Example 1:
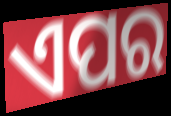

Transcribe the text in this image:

ଏପର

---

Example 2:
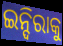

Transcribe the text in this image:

ଇନ୍ଦିରାକୁ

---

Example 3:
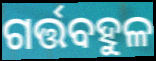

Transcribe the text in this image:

ଗର୍ତ୍ତବହୁଳ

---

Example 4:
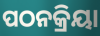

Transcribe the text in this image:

ପଠନକ୍ରିୟା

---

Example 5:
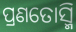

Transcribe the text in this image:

ପ୍ରଣତୋସ୍ମି